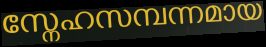
സ്നേഹസമ്പന്നമായ